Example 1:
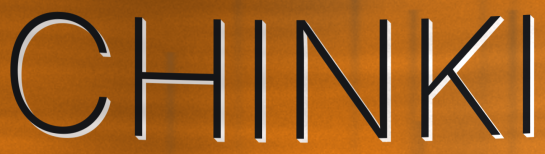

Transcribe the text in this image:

CHINKI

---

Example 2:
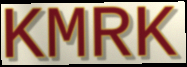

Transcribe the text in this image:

KMRK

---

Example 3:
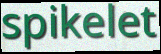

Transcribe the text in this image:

spikelet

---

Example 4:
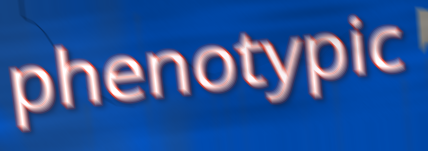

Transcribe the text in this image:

phenotypic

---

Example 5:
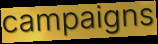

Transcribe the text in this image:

campaigns